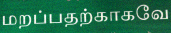
மறப்பதற்காகவே